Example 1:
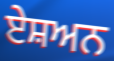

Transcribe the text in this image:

ਏਸ਼ਅਨ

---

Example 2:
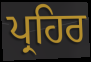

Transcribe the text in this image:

ਪ੍ਰਹਿਰ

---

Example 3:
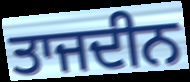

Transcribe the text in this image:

ਤਾਜਦੀਨ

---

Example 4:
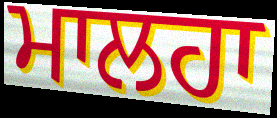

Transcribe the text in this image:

ਮਾਲਹਾ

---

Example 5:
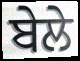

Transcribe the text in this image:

ਬੇਲੇ